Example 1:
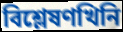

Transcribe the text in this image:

বিশ্লেষণখিনি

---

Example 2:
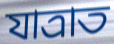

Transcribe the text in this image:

যাত্ৰাত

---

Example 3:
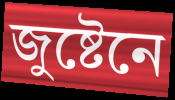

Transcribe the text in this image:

জুষ্টেনে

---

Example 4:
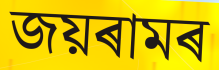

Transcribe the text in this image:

জয়ৰামৰ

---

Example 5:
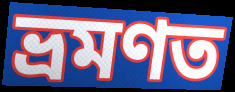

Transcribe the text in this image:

ভ্ৰমণত